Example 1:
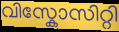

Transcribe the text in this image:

വിസ്കോസിറ്റി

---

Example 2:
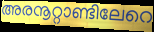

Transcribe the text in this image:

അരനൂറ്റാണ്ടിലേറെ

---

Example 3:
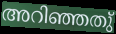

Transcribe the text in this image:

അറിഞ്ഞതു്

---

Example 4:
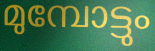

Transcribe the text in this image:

മുമ്പോട്ടും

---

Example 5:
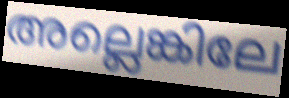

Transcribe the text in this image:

അല്ലെങ്കിലേ